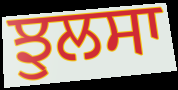
ਝੁਲਸਾ